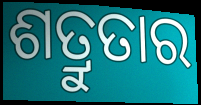
ଶତ୍ରୁତାର